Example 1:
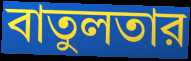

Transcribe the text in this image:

বাতুলতার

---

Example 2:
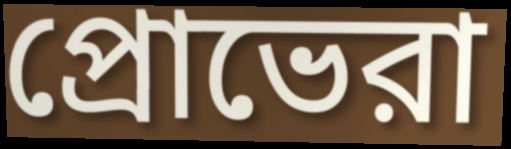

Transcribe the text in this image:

প্রোভেরা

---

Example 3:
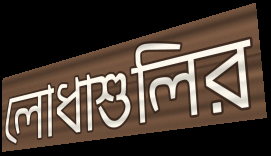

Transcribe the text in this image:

লোধাশুলির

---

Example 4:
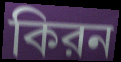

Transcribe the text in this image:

কিরন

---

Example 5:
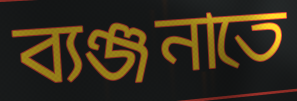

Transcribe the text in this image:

ব্যঞ্জনাতে